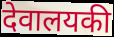
देवालयकी